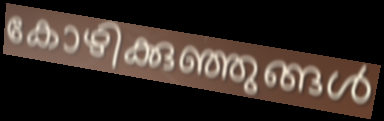
കോഴിക്കുഞ്ഞുങ്ങൾ